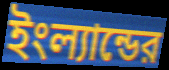
ইংল্যান্ডের